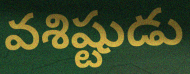
వశిష్టుడు